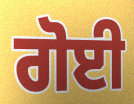
ਗੋਈ